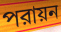
পরায়ন